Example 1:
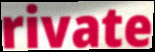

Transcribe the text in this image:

rivate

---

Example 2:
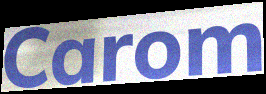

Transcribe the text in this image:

Carom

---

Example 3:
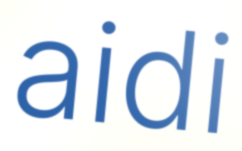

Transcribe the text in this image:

aidi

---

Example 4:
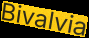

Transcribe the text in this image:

Bivalvia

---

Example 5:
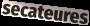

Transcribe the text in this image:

secateures